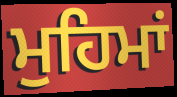
ਮੁਹਿਮਾਂ